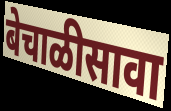
बेचाळीसावा